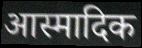
आस्मादिक